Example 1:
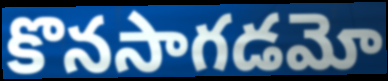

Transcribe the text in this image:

కొనసాగడమో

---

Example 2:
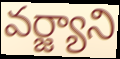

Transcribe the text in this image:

వర్జ్యాని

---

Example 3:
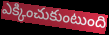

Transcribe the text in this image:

ఎక్కించుకుంటుంది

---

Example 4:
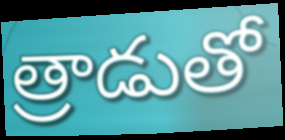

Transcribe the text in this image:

త్రాడుతో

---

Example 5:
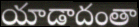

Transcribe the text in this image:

యాడాదంతా